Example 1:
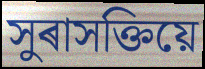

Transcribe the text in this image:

সুৰাসক্তিয়ে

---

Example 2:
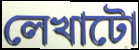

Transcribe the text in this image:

লেখাটো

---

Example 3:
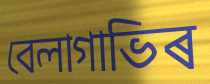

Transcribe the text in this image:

বেলাগাভিৰ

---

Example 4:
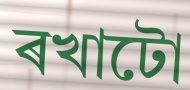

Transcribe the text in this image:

ৰখাটো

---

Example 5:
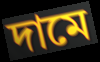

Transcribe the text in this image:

দামে